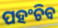
ପହଂଚିବ